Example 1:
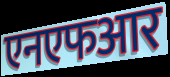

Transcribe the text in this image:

एनएफआर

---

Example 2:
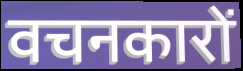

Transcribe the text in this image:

वचनकारों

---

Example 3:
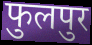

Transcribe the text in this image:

फुलपुर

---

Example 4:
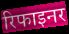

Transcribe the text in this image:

रिफाइनर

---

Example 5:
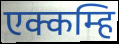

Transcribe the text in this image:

एक्कम्हि